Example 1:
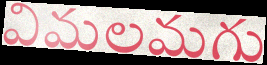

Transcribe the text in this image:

విమలమగు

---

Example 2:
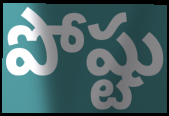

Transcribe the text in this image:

పోష్టు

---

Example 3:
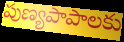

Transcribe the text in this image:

పుణ్యపాపాలకు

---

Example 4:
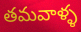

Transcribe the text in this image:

తమవాళ్ళ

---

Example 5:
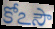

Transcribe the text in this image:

కోఽసౌ